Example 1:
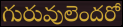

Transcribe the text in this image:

గురువులెందరో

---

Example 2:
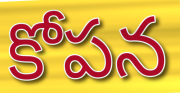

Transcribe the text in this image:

కోపన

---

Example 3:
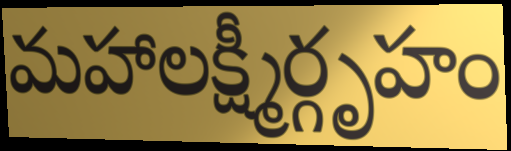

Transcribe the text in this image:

మహాలక్ష్మీర్గృహం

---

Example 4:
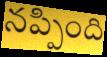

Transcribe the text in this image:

నప్పింది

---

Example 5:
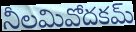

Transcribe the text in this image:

నీలమివోదకమ్